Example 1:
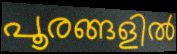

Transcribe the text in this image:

പൂരങ്ങളിൽ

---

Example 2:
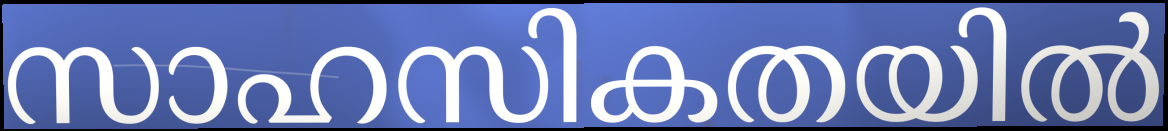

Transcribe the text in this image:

സാഹസികതയിൽ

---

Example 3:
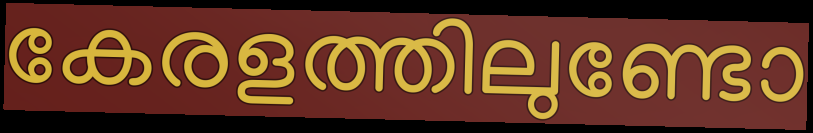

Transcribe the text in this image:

കേരളത്തിലുണ്ടോ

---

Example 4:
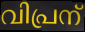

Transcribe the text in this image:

വിപ്രന്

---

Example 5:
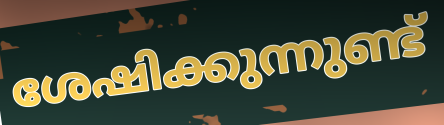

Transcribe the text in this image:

ശേഷിക്കുന്നുണ്ട്